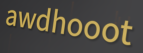
awdhooot